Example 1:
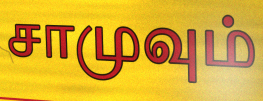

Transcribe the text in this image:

சாமுவும்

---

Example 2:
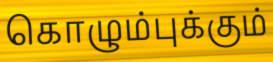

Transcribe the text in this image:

கொழும்புக்கும்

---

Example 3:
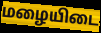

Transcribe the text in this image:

மழையிடை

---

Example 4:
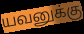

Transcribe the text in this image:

யவனுக்கு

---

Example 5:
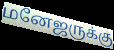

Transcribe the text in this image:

மனேஜருக்கு